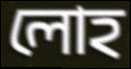
লোহ